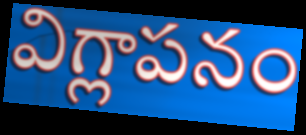
విగ్లాపనం